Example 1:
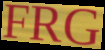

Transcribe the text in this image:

FRG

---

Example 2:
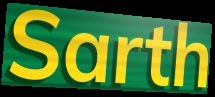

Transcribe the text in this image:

Sarth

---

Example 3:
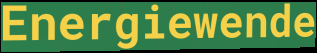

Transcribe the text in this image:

Energiewende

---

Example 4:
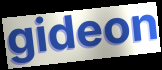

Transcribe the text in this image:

gideon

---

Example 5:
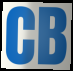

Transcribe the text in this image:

CB